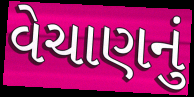
વેચાણનું